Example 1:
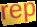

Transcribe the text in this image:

rep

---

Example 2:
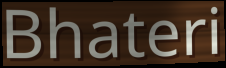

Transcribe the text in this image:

Bhateri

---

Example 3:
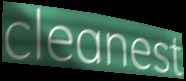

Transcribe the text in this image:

cleanest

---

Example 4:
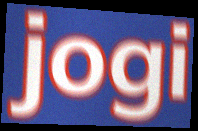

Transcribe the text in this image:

jogi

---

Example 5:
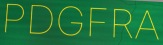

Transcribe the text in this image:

PDGFRA